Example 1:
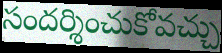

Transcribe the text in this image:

సందర్శించుకోవచ్చు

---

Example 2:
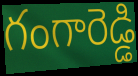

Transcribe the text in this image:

గంగారెడ్డి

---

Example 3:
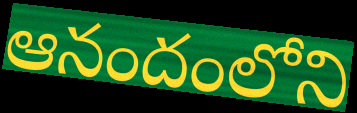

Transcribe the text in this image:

ఆనందంలోని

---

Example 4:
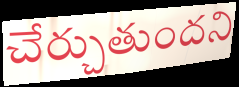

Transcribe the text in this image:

చేర్చుతుందని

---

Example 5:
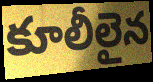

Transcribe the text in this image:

కూలీలైన